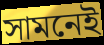
সামনেই